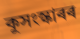
কুসংস্কাৰৰ